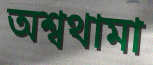
অশ্বথামা